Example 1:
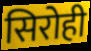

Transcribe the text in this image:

सिरोही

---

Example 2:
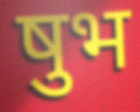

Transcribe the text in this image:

षुभ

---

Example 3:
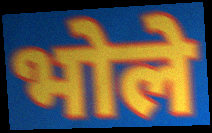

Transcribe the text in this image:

भोले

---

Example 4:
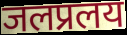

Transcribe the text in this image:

जलप्रलय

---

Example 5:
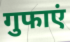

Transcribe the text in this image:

गुफाएं